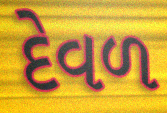
દેવળ